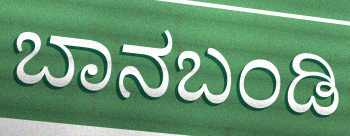
ಬಾನಬಂಡಿ